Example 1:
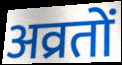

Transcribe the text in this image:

अव्रतों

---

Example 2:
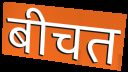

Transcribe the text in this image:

बीचत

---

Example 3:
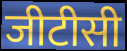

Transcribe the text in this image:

जीटीसी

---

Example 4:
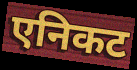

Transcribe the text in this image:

एनिकट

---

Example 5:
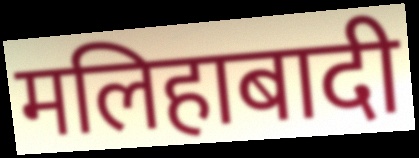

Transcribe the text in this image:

मलिहाबादी